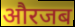
औरजब